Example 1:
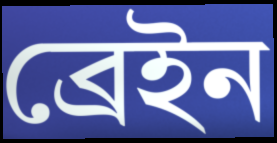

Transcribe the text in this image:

ব্রেইন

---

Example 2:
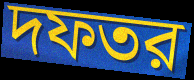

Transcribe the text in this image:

দফতর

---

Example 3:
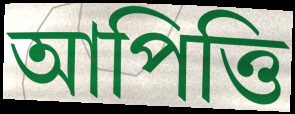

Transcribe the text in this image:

আপিত্তি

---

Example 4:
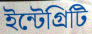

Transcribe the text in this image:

ইন্টেগ্রিটি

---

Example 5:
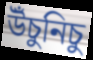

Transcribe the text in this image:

উঁচুনিচু